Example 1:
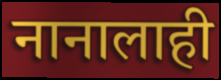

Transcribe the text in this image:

नानालाही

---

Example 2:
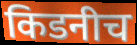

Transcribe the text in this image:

किडनीच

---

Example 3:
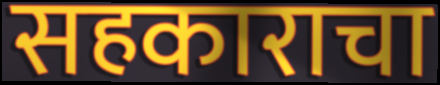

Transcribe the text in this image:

सहकाराचा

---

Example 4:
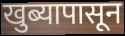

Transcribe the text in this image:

खुब्यापासून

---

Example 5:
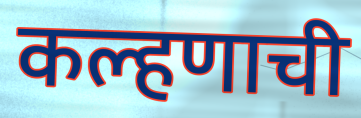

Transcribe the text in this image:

कल्हणाची